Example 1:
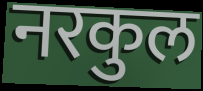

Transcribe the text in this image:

नरकुल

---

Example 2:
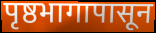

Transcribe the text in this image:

पृष्ठभागापासून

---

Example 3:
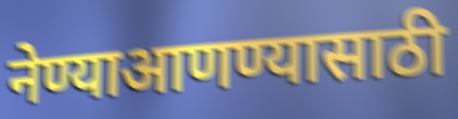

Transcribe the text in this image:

नेण्याआणण्यासाठी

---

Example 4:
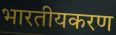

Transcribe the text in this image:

भारतीयकरण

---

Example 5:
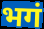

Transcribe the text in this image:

भगं